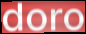
doro